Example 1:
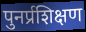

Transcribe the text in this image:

पुनर्प्रशिक्षण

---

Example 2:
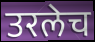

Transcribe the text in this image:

उरलेच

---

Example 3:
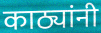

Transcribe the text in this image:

काठ्यांनी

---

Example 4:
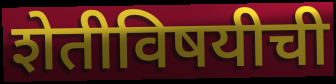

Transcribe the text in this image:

शेतीविषयीची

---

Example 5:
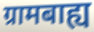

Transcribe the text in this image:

ग्रामबाह्य